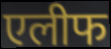
एलीफ